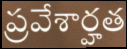
ప్రవేశార్హత